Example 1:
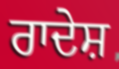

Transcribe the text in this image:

ਰਾਦੇਸ਼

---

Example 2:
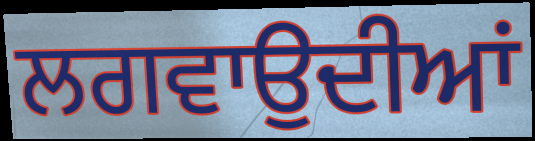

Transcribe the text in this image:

ਲਗਵਾਉਦੀਆਂ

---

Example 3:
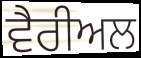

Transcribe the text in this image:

ਵੈਰੀਅਲ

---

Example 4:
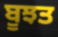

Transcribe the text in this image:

ਬੂਝਤ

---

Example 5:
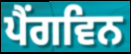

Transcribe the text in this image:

ਪੈਂਗਵਿਨ